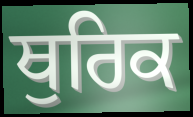
ਥੁਰਿਕ